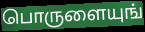
பொருளையுங்